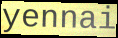
yennai